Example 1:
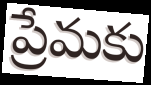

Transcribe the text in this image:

ప్రేమకు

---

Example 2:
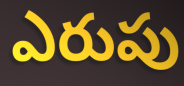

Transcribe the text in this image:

ఎరుపు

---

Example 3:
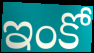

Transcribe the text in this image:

ఇంకో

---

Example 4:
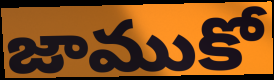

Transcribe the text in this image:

జాముకో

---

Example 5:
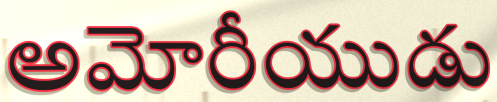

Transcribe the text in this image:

అమోరీయుడు